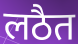
लठैत